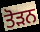
ਤੋੜਨ